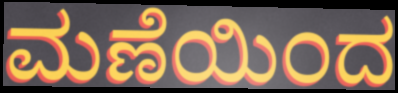
ಮಣೆಯಿಂದ